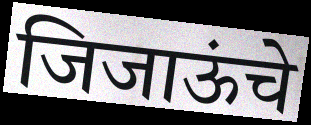
जिजाऊंचे